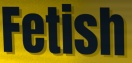
Fetish